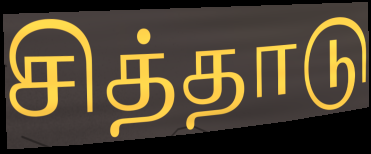
சித்தாடு